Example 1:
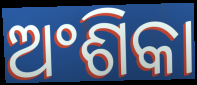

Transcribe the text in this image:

ଅଂଶିକା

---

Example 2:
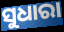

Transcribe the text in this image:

ସୁଧାରା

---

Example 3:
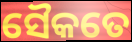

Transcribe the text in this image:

ସୈକତେ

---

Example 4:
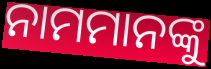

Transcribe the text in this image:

ନାମମାନଙ୍କୁ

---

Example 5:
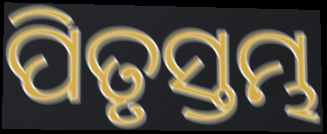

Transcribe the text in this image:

ପିତୃସ୍ତମ୍ଭ